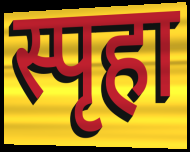
स्पृहा